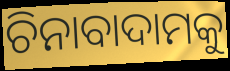
ଚିନାବାଦାମକୁ